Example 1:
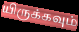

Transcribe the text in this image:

யிருக்கவும்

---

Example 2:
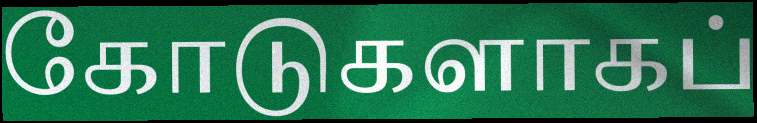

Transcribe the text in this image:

கோடுகளாகப்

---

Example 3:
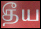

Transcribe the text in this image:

தீய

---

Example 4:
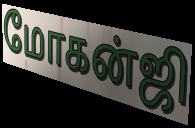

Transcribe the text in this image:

மோகன்ஜி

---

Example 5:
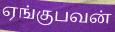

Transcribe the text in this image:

ஏங்குபவன்